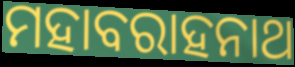
ମହାବରାହନାଥ